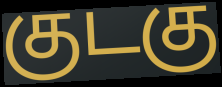
குடகு